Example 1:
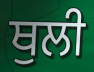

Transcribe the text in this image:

ਥੁਲੀ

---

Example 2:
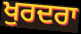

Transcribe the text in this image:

ਖੁਰਦਰਾ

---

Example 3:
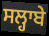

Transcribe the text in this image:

ਸਲ੍ਹਾਬੇ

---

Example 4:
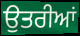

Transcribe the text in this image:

ਉਤਰੀਆਂ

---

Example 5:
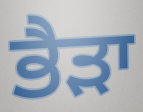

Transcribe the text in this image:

ਭੈੜਾ